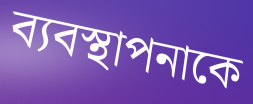
ব্যবস্থাপনাকে